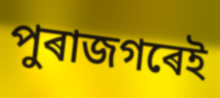
পুৰাজগৰেই